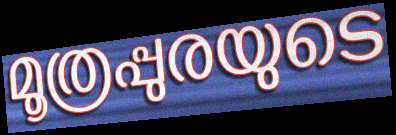
മൂത്രപ്പുരയുടെ